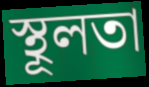
স্থূলতা